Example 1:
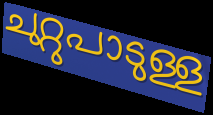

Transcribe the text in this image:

ചുറ്റുപാടുള്ള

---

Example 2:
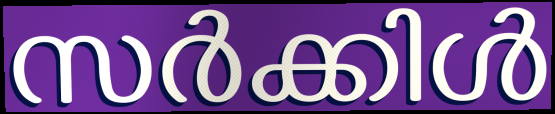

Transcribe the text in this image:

സർക്കിൾ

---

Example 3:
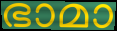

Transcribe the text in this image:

ഭാമാ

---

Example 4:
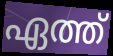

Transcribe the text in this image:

ഏത്ത്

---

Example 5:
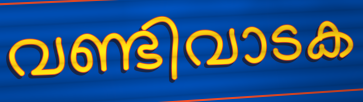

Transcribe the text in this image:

വണ്ടിവാടക